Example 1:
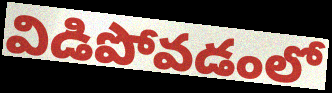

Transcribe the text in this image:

విడిపోవడంలో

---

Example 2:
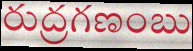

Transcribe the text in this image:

రుద్రగణంబు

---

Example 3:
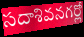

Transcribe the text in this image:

సదాశివనగర్లో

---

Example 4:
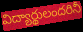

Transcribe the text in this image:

విద్యార్థులందరినీ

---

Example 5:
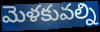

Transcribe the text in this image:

మెళకువల్ని